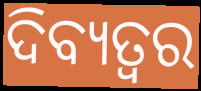
ଦିବ୍ୟତ୍ବର